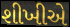
શીખીએ